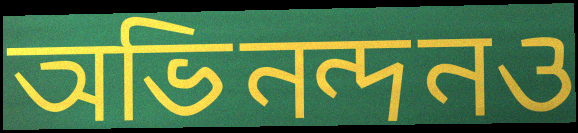
অভিনন্দনও